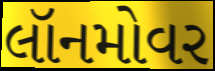
લૉનમોવર